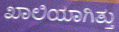
ಖಾಲಿಯಾಗಿತ್ತು